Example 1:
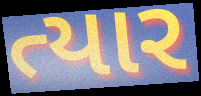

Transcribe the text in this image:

ત્યાર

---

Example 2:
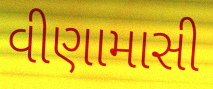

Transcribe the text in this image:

વીણામાસી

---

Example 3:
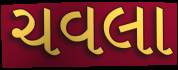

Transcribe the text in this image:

ચવલા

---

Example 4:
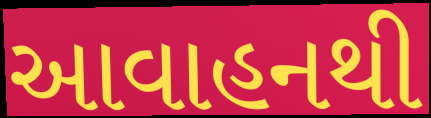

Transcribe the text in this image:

આવાહનથી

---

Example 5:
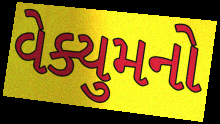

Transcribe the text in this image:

વેક્યુમનો